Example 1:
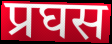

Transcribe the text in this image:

प्रघस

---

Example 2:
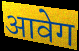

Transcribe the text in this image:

आवेग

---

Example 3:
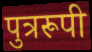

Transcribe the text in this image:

पुत्ररूपी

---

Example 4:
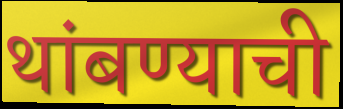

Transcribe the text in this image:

थांबण्याची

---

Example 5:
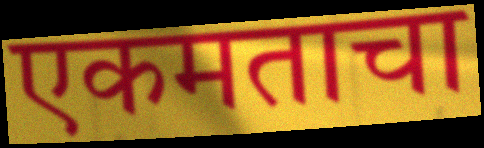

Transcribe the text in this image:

एकमताचा